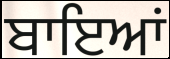
ਬਾਇਆਂ